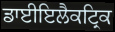
ਡਾਈਇਲੈਕਟ੍ਰਿਕ